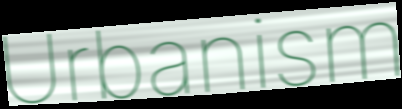
Urbanism